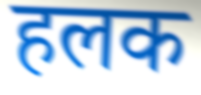
हलक